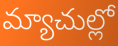
మ్యాచుల్లో